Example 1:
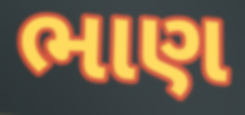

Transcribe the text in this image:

ભાણ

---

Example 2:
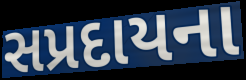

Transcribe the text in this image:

સપ્રદાયના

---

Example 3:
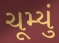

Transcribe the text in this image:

ચૂમ્યું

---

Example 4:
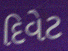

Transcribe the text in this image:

દિવેટ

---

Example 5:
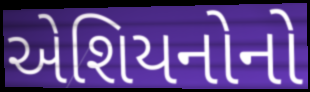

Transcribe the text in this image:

એશિયનોનો